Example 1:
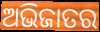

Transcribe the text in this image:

ଅଭିଜାତର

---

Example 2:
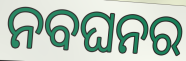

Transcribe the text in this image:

ନବଘନର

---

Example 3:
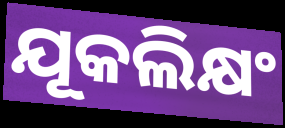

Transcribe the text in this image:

ଯୂକଲିକ୍ଷଂ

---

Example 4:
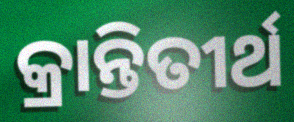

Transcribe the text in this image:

କ୍ରାନ୍ତିତୀର୍ଥ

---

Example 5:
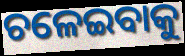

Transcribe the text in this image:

ଚଳେଇବାକୁ